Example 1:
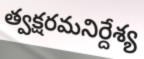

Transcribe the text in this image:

త్వక్షరమనిర్దేశ్య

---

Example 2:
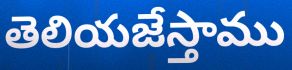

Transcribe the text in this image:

తెలియజేస్తాము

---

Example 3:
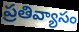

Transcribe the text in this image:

ప్రతివ్యాసం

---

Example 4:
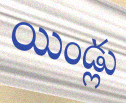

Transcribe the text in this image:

యిండ్లు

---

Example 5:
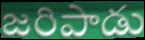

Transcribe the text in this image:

జరిపాడు